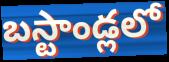
బస్టాండ్లలో